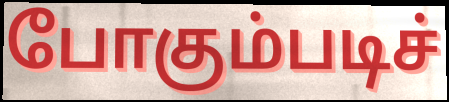
போகும்படிச்